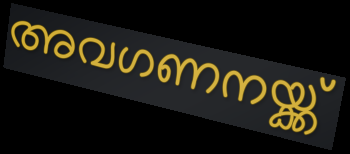
അവഗണനയ്ക്ക്